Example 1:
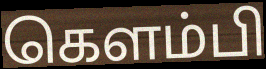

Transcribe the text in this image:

கெளம்பி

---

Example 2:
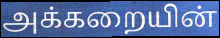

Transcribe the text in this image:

அக்கறையின்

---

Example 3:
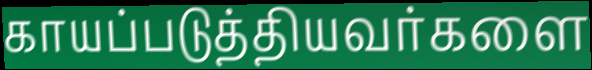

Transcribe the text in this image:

காயப்படுத்தியவர்களை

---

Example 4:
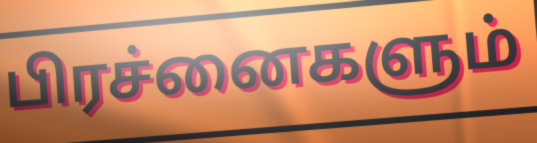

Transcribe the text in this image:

பிரச்னைகளும்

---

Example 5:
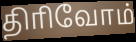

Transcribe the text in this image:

திரிவோம்